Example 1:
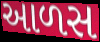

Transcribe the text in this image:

આળસ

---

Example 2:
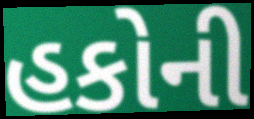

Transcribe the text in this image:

હકોની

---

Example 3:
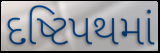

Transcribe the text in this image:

દષ્ટિપથમાં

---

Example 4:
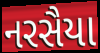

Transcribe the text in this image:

નરસૈયા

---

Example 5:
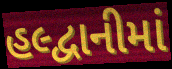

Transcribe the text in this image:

હલ્દ્વાનીમાં